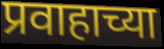
प्रवाहाच्या